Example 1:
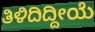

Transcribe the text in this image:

ತಿಳಿದಿದ್ದೀಯೆ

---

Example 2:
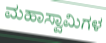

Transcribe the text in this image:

ಮಹಾಸ್ವಾಮಿಗಳ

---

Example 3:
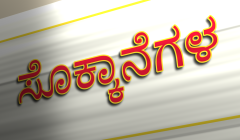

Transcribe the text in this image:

ಸೊಕ್ಕಾನೆಗಳ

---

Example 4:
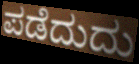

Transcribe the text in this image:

ಪಡೆದುದು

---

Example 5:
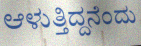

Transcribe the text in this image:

ಆಳುತ್ತಿದ್ದನೆಂದು